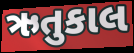
ઋતુકાલ